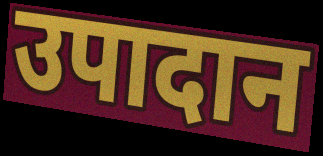
उपादान